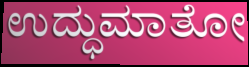
ಉದ್ಧುಮಾತೋ